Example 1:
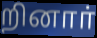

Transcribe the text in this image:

றினார்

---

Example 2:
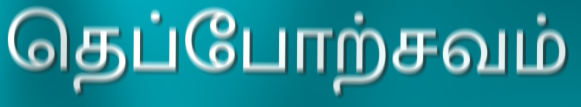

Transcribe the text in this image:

தெப்போற்சவம்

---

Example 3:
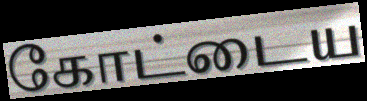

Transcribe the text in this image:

கோட்டைய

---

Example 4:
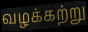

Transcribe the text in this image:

வழக்கற்று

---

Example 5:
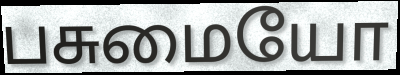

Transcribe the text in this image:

பசுமையோ